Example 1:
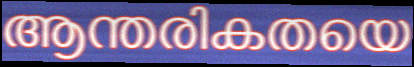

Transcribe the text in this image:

ആന്തരികതയെ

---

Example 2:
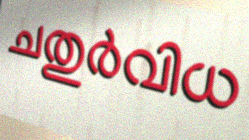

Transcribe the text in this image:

ചതുർവിധ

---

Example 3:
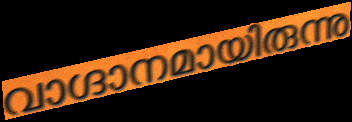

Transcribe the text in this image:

വാഗ്ദാനമായിരുന്നു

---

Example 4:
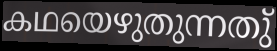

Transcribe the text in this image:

കഥയെഴുതുന്നതു്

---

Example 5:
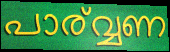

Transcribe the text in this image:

പാര്വ്വണ